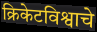
क्रिकेटविश्वाचे